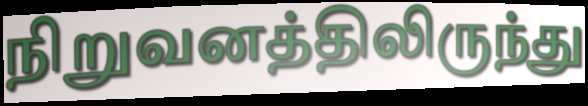
நிறுவனத்திலிருந்து